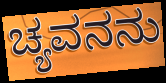
ಚ್ಯವನನು